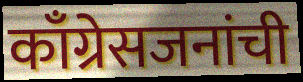
काँग्रेसजनांची